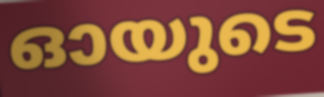
ഓയുടെ